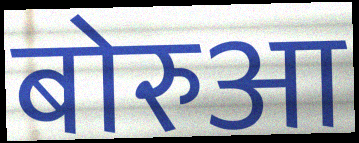
बोरुआ